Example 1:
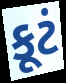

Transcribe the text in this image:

કૂટં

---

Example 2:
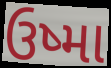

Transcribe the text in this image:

ઉષ્મા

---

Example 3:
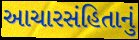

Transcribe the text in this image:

આચારસંહિતાનું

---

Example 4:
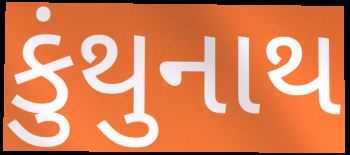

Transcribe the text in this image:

કુંથુનાથ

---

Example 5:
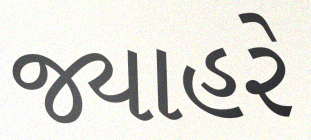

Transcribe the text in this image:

જ્યાહરે